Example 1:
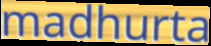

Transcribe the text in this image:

madhurta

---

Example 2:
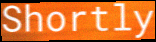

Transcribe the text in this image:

Shortly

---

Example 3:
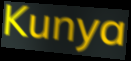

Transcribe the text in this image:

Kunya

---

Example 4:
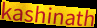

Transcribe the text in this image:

kashinath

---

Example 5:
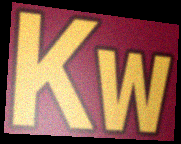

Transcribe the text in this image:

Kw